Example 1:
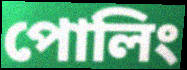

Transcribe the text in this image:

পোলিং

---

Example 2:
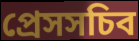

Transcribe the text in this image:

প্রেসসচিব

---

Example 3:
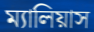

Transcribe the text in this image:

ম্যালিয়াস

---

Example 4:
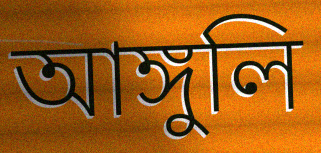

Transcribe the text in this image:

আঙ্গুলি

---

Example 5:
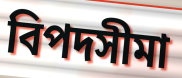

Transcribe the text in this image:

বিপদসীমা